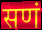
सणं